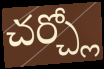
చర్చ్లో